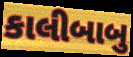
કાલીબાબુ